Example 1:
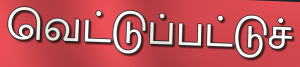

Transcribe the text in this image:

வெட்டுப்பட்டுச்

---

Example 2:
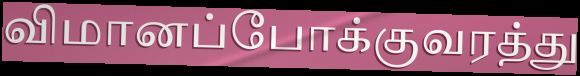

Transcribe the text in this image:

விமானப்போக்குவரத்து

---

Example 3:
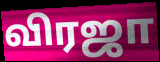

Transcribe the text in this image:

விரஜா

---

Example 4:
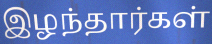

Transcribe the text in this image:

இழந்தார்கள்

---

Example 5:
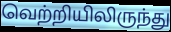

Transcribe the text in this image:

வெற்றியிலிருந்து